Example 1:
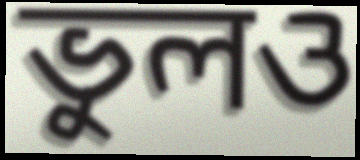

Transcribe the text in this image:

ভুলও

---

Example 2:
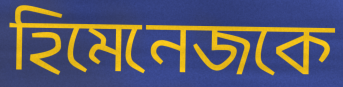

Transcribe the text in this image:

হিমেনেজকে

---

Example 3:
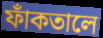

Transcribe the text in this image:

ফাঁকতালে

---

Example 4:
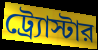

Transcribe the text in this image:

ট্র্যোস্টার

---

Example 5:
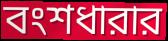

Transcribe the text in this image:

বংশধারার